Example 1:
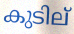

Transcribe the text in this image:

കുടില്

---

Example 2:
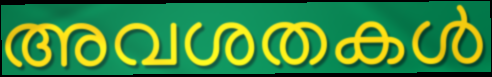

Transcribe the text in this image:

അവശതകൾ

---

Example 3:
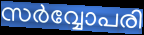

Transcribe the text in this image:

സർവ്വോപരി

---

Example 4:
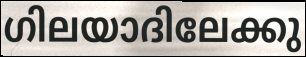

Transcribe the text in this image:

ഗിലയാദിലേക്കു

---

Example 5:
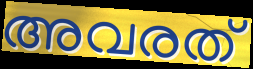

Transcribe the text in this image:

അവരത്